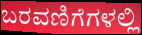
ಬರವಣಿಗೆಗಳಲ್ಲಿ